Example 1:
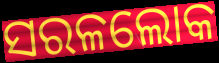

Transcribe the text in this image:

ସରଳଲୋକ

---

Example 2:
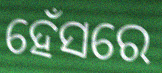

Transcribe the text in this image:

ହେଁସରେ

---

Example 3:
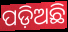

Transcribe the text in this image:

ପଡ଼ିଅଛି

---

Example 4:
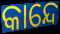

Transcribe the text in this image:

କାନ୍ଦେ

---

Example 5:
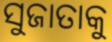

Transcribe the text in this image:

ସୁଜାତାକୁ